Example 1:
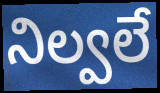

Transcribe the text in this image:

నిల్వలే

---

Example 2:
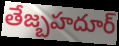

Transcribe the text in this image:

తేజ్బహదూర్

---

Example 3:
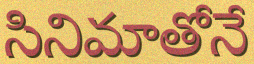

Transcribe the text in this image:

సినిమాతోనే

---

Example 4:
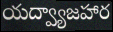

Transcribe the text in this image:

యద్వ్యాజహార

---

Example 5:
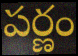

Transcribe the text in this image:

పర్ణం